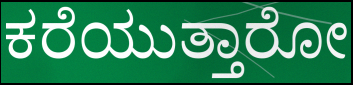
ಕರೆಯುತ್ತಾರೋ